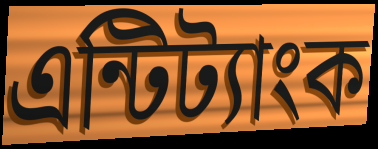
এন্টিট্যাংক